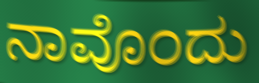
ನಾವೊಂದು